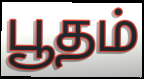
பூதம்